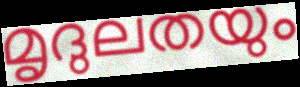
മൃദുലതയും